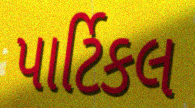
પાર્ટિકલ